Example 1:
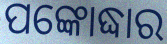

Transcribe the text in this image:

ପଙ୍କୋଦ୍ଧାର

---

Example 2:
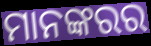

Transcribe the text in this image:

ମାନଙ୍କରର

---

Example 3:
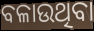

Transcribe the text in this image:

ବଳାଉଥିବା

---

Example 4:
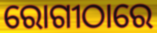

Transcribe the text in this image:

ରୋଗୀଠାରେ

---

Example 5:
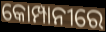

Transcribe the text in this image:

କୋମ୍ପାନୀରେ